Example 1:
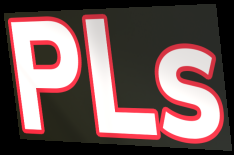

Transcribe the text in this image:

PLs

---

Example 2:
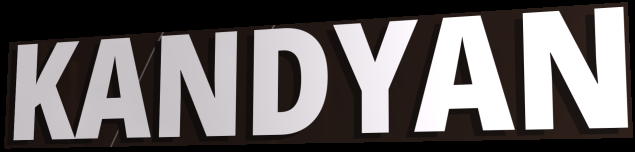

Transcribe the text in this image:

KANDYAN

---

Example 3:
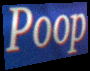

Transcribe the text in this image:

Poop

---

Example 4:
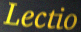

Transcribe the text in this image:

Lectio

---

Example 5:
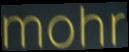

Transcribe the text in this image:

mohr